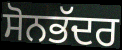
ਸੋਨਭੱਦਰ